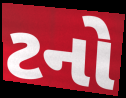
ટનો